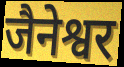
जैनेश्वर